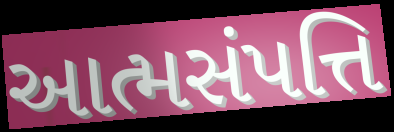
આત્મસંપત્તિ